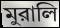
মুরালি